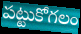
పట్టుకోగలం